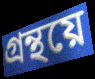
গ্ৰন্থয়ে